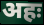
अहः